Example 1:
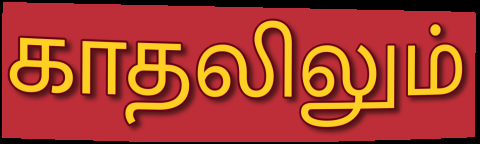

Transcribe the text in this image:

காதலிலும்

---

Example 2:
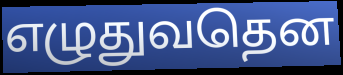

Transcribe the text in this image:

எழுதுவதென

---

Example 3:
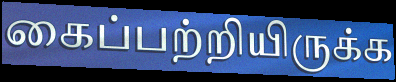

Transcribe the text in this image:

கைப்பற்றியிருக்க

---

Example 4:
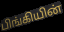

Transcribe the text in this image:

பிங்கியின்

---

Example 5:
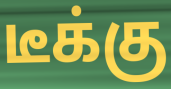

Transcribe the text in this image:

டீக்கு